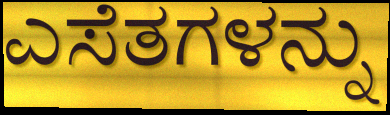
ಎಸೆತಗಳನ್ನು